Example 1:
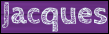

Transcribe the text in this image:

Jacques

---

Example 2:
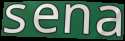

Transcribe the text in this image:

sena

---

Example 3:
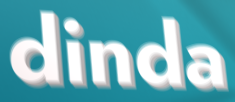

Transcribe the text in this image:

dinda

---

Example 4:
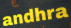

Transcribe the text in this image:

andhra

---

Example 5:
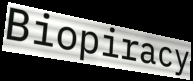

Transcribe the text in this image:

Biopiracy